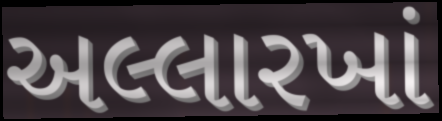
અલ્લારખાં